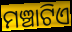
ମଞ୍ଚାଟିଏ